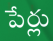
పేర్లు